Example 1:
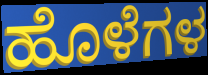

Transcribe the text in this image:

ಹೊಳೆಗಳ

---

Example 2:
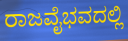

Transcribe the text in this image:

ರಾಜವೈಭವದಲ್ಲಿ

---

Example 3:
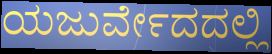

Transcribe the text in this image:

ಯಜುರ್ವೇದದಲ್ಲಿ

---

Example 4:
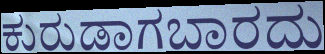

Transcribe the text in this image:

ಕುರುಡಾಗಬಾರದು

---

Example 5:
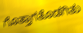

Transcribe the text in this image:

ಗೊತ್ತಾಗತೊಡಗಿತು